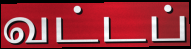
வட்டப்